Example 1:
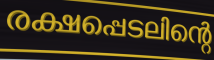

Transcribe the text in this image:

രക്ഷപ്പെടലിന്റെ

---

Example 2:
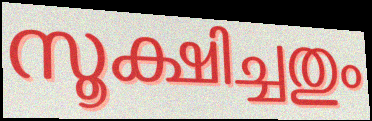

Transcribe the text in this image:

സൂക്ഷിച്ചതും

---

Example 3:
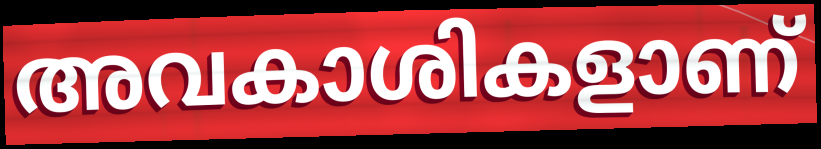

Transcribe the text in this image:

അവകാശികളാണ്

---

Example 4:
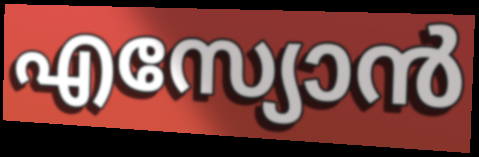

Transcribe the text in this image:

എസ്യോൻ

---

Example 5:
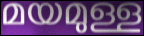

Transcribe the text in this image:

മയമുള്ള